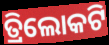
ତ୍ରିଲୋକଟି